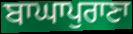
ਬਾਘਾਪੁਰਾਣਾ